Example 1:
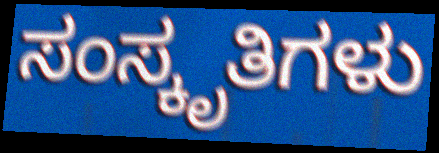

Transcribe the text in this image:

ಸಂಸ್ಕೃತಿಗಳು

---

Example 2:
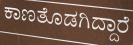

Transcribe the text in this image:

ಕಾಣತೊಡಗಿದ್ದಾರೆ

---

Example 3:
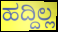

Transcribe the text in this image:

ಹದ್ದಿಲ್ಲ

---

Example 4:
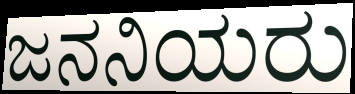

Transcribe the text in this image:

ಜನನಿಯರು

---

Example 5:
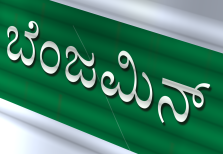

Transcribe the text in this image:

ಬೆಂಜಮಿನ್